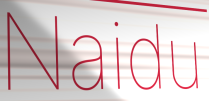
Naidu